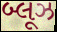
બ્લૂઝ